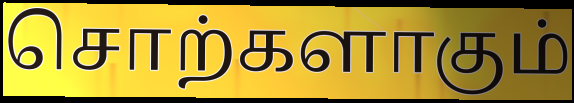
சொற்களாகும்